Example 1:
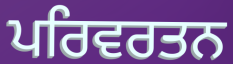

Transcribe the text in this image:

ਪਰਿਵਰਤਨ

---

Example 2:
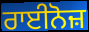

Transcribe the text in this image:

ਰਾਈਨੋਜ਼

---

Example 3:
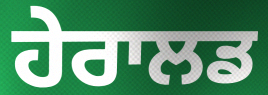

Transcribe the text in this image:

ਹੇਰਾਲਡ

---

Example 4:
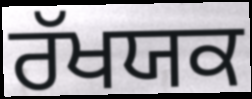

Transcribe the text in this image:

ਰੱਖਯਕ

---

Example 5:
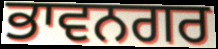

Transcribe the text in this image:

ਭਾਵਨਗਰ